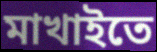
মাখাইতে